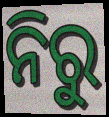
ନିରୁ